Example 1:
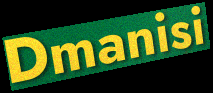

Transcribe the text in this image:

Dmanisi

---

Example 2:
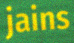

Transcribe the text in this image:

jains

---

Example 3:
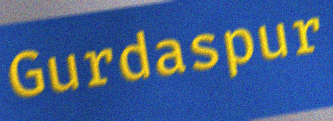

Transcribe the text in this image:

Gurdaspur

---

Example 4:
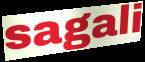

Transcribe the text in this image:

sagali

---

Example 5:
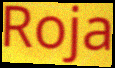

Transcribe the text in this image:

Roja